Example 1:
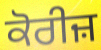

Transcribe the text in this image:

ਕੋਰੀਜ਼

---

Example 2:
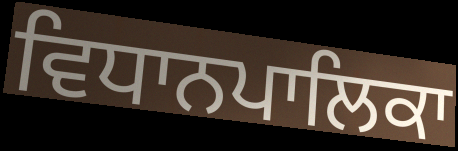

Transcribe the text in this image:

ਵਿਧਾਨਪਾਲਿਕਾ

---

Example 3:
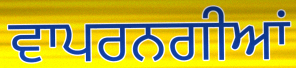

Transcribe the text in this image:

ਵਾਪਰਨਗੀਆਂ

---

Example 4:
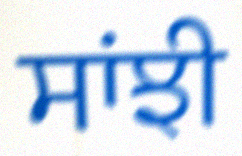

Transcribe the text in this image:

ਸਾਂਝੀ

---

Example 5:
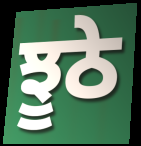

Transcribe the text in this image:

ਝੂਠੇ